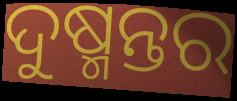
ଦୁଷ୍ମନ୍ତର